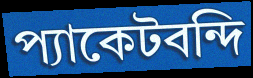
প্যাকেটবন্দি